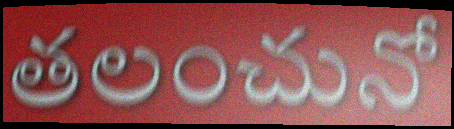
తలంచునో